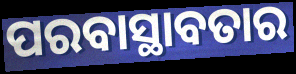
ପରବାସ୍ଥାବତାର